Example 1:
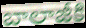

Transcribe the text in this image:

బాలాజీకి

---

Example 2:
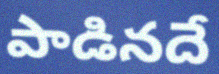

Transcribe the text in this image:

పాడినదే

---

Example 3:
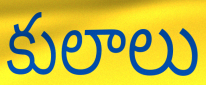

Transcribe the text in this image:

కులాలు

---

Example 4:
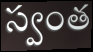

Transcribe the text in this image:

స్వంత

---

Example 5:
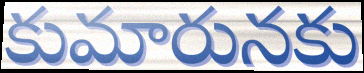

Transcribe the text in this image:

కుమారునకు